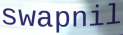
swapnil